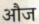
औज